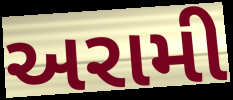
અરામી